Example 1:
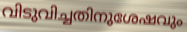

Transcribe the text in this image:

വിടുവിച്ചതിനുശേഷവും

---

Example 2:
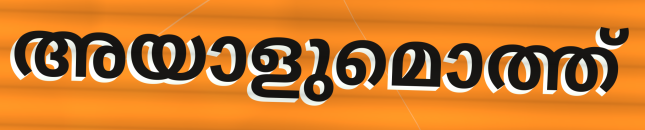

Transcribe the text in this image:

അയാളുമൊത്ത്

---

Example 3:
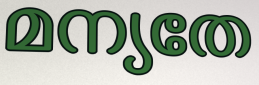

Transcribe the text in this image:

മന്യതേ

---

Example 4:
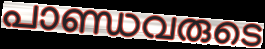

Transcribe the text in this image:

പാണ്ഡവരുടെ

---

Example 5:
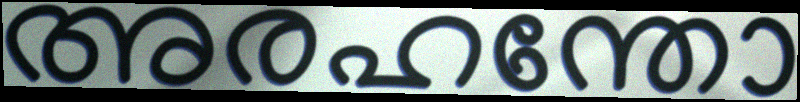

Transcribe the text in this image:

അരഹന്തോ